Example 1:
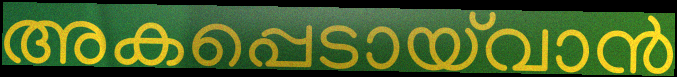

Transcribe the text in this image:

അകപ്പെടായ്‌വാൻ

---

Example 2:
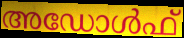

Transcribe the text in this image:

അഡോൾഫ്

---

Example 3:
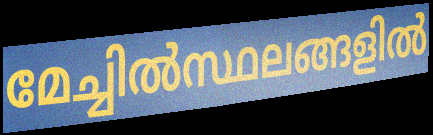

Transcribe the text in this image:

മേച്ചിൽസ്ഥലങ്ങളിൽ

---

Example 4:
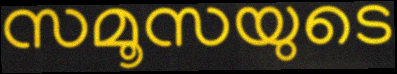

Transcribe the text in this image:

സമൂസയുടെ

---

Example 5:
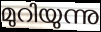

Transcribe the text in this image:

മുറിയുന്നു